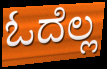
ಓದೆಲ್ಲ